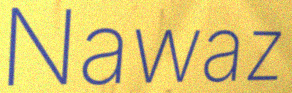
Nawaz